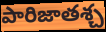
పారిజాతశ్చ